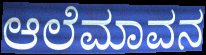
ಆಲೆಮಾವನ